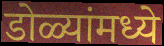
डोळ्यांमध्ये